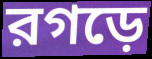
রগড়ে